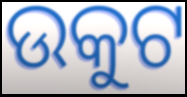
ଉକୁଟ